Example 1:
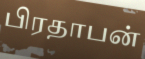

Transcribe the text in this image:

பிரதாபன்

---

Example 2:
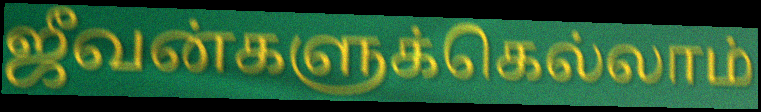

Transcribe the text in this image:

ஜீவன்களுக்கெல்லாம்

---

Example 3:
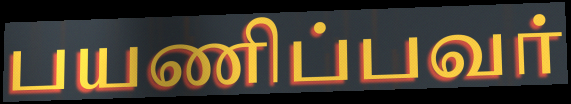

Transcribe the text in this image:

பயணிப்பவர்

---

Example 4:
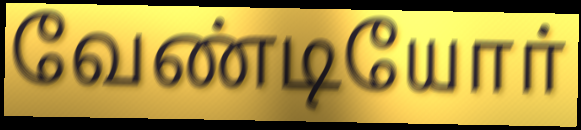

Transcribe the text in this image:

வேண்டியோர்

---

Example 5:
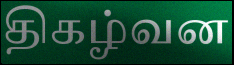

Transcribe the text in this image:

திகழ்வன